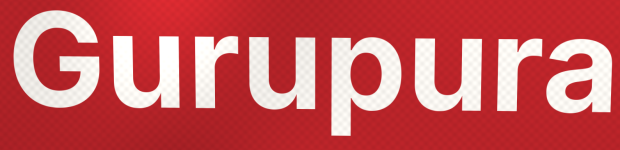
Gurupura